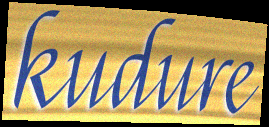
kudure